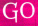
GO